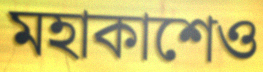
মহাকাশেও